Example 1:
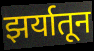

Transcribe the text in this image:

झर्यातून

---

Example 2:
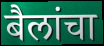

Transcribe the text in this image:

बैलांचा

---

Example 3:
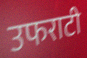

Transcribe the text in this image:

उफराटी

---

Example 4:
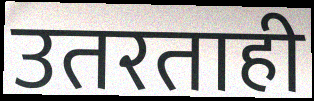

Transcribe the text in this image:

उतरताही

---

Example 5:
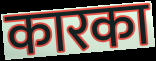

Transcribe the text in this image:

कारका